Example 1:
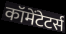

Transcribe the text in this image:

कॉमेंटेटर्स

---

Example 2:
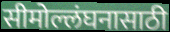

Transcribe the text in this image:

सीमोल्लंघनासाठी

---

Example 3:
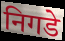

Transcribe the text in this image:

निगडे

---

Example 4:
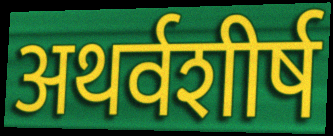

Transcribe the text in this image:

अथर्वशीर्ष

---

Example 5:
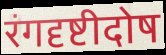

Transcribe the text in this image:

रंगदृष्टीदोष